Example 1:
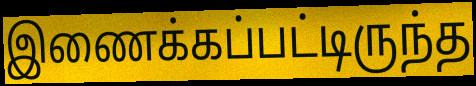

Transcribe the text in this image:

இணைக்கப்பட்டிருந்த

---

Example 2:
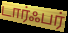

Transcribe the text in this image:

டார்ஃபர்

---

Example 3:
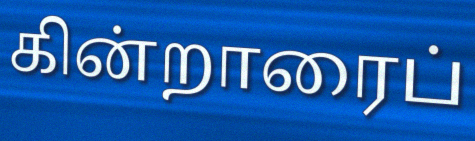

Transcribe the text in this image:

கின்றாரைப்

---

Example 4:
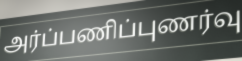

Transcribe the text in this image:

அர்ப்பணிப்புணர்வு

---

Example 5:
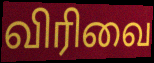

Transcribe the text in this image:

விரிவை